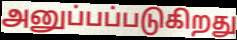
அனுப்பப்படுகிறது